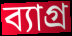
ব্যাগ্র